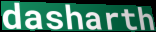
dasharth